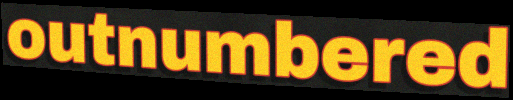
outnumbered